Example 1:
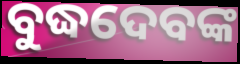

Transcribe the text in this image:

ବୁଦ୍ଧଦେବଙ୍କ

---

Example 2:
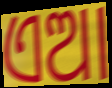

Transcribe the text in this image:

ଏଆ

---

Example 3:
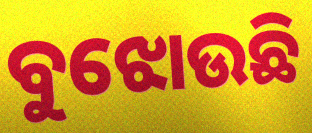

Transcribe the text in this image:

ବୁଝୋଉଛି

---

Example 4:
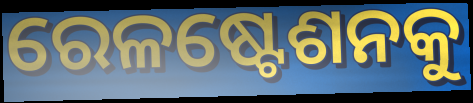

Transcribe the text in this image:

ରେଳଷ୍ଟେଶନକୁ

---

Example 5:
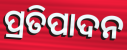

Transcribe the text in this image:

ପ୍ରତିପାଦନ